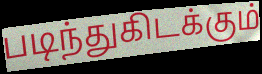
படிந்துகிடக்கும்